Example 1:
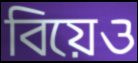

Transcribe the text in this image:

বিয়েও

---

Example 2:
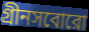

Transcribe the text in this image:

গ্রীনসবোরো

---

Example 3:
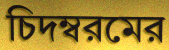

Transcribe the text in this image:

চিদম্বরমের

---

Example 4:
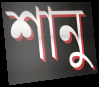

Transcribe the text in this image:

শানু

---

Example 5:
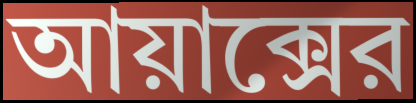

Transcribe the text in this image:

আয়াক্সের